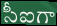
సీఐగా